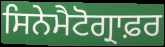
ਸਿਨੇਮੈਟੋਗ੍ਰਾਫ਼ਰ